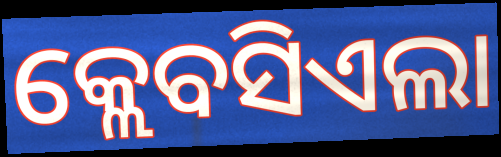
କ୍ଲେବସିଏଲା